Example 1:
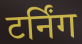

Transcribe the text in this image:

टर्निंग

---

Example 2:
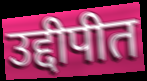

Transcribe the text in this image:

उद्दीपीत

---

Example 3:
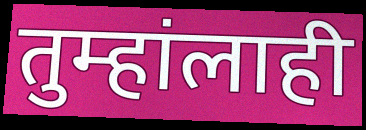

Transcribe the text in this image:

तुम्हांलाही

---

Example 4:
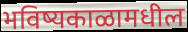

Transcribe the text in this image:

भविष्यकाळामधील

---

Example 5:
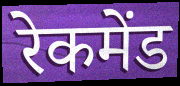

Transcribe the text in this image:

रेकमेंड